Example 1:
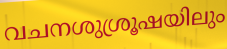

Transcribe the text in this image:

വചനശുശ്രൂഷയിലും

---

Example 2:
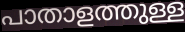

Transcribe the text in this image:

പാതാളത്തുള്ള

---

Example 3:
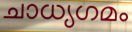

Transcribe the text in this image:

ചാധ്യഗമം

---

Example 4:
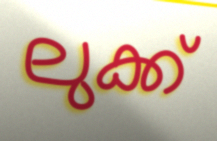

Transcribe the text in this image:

ലുക്ക്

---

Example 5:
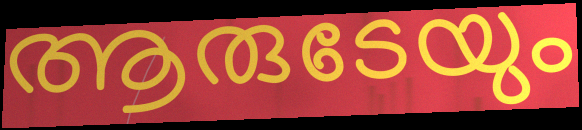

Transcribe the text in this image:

ആരുടേയും